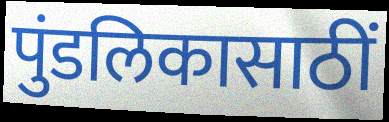
पुंडलिकासाठीं